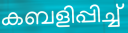
കബളിപ്പിച്ച്